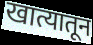
खात्यातून